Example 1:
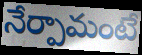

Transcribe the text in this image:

నేర్పామంటే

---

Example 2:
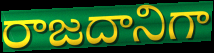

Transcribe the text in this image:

రాజదానిగా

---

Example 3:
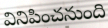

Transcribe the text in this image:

వినిపించనుంది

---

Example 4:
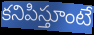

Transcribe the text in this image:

కనిపిస్తూంటే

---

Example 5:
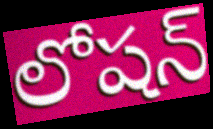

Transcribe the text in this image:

లోషన్